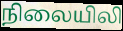
நிலையிலி